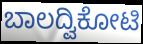
ಬಾಲದ್ವಿಕೋಟಿ